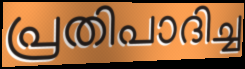
പ്രതിപാദിച്ച